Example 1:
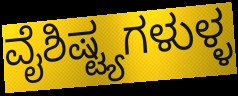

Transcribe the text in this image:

ವೈಶಿಷ್ಟ್ಯಗಳುಳ್ಳ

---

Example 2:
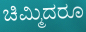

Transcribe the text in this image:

ಚಿಮ್ಮಿದರೂ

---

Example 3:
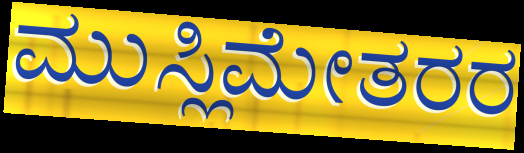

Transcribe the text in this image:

ಮುಸ್ಲಿಮೇತರರ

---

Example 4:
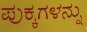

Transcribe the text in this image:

ಪುಕ್ಕಗಳನ್ನು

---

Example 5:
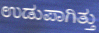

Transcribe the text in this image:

ಉಡುಪಾಗಿತ್ತು